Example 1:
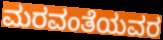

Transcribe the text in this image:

ಮರವಂತೆಯವರ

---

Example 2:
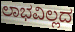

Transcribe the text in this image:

ಲಾಭವಿಲ್ಲದ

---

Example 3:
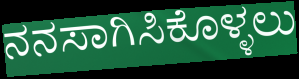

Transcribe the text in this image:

ನನಸಾಗಿಸಿಕೊಳ್ಳಲು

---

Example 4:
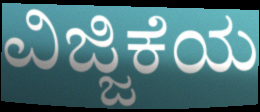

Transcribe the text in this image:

ವಿಜ್ಜಿಕೆಯ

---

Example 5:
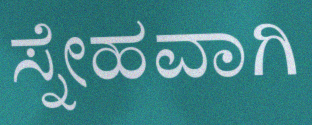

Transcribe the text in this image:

ಸ್ನೇಹವಾಗಿ